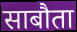
साबौता